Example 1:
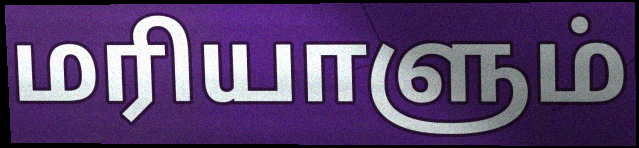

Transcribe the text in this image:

மரியாளும்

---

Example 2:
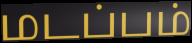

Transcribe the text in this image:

மடப்பம்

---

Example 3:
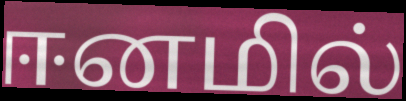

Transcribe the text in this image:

ஈனமில்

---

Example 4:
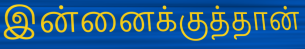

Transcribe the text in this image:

இன்னைக்குத்தான்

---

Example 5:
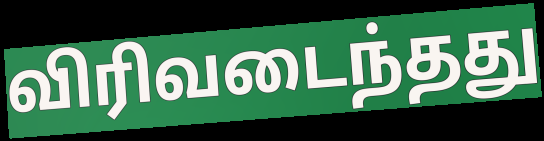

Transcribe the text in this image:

விரிவடைந்தது